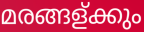
മരങ്ങള്ക്കും